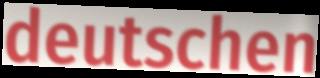
deutschen